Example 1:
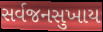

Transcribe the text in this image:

સર્વજનસુખાય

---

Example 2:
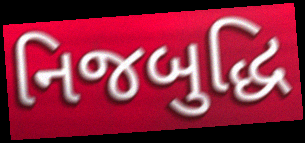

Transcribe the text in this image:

નિજબુદ્ધિ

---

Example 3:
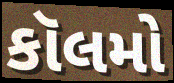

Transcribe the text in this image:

કૉલમો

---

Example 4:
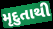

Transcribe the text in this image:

મૃદુતાથી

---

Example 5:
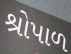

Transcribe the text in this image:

શ્રોપાળ